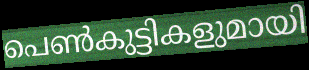
പെൺകുട്ടികളുമായി